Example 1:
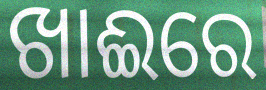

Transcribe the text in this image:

ଖାଈରେ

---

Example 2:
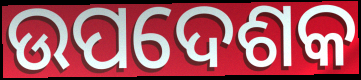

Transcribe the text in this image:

ଉପଦେଶକ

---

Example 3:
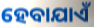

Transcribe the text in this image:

ହେବାଯାଏଁ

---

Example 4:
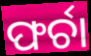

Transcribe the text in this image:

ଫର୍ଚା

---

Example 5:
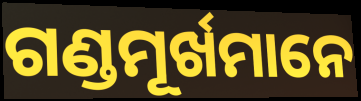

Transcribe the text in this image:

ଗଣ୍ଡମୂର୍ଖମାନେ